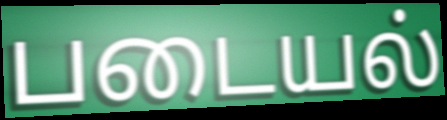
படையல்